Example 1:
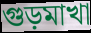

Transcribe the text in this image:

গুড়মাখা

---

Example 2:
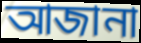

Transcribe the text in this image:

আজানা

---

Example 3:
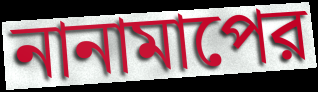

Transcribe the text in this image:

নানামাপের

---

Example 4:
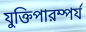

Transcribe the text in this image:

যুক্তিপারম্পর্য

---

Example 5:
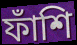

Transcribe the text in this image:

ফাঁশি